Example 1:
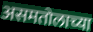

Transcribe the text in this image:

असमतोलाच्या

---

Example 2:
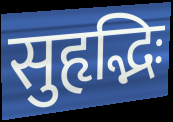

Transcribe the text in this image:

सुहृद्भिः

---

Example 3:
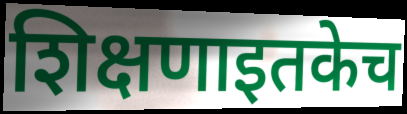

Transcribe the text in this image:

शिक्षणाइतकेच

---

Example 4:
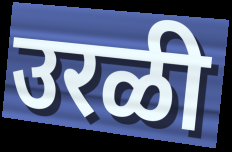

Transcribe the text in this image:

उरळी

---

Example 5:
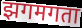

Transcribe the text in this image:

झगमगता